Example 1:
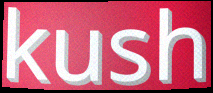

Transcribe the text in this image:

kush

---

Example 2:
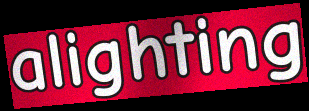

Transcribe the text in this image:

alighting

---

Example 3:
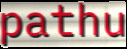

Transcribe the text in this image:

pathu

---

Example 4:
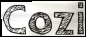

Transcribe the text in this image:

Cozi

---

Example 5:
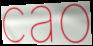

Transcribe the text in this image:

cao